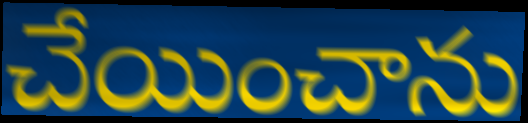
చేయించాను